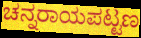
ಚನ್ನರಾಯಪಟ್ಟಣ